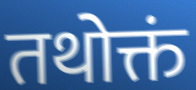
तथोक्तं